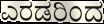
ಎರಡರಿಂದ